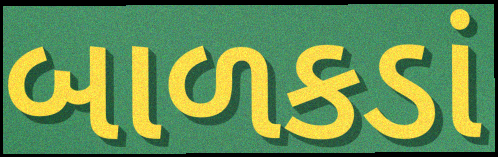
બાળકડાં